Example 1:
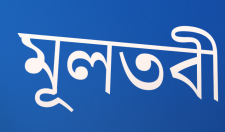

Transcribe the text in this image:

মূলতবী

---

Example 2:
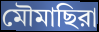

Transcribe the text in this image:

মৌমাছিরা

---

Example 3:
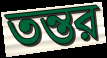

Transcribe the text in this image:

তন্তর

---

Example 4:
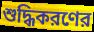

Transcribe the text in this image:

শুদ্ধিকরণের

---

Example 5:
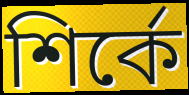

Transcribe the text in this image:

শির্কে